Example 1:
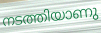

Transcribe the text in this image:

നടത്തിയാണു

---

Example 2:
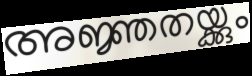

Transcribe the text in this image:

അജ്ഞതയ്ക്കും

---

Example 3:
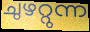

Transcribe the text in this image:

ചുഴറ്റുന്ന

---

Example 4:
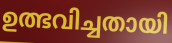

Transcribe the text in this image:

ഉത്ഭവിച്ചതായി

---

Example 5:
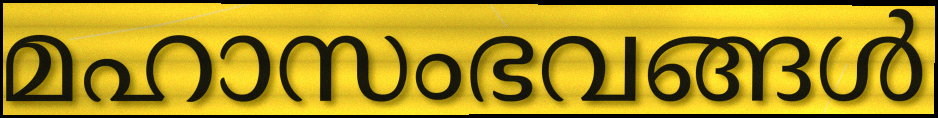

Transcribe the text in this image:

മഹാസംഭവങ്ങൾ